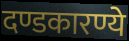
दण्डकारण्ये